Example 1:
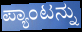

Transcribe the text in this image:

ಪ್ಯಾಂಟನ್ನು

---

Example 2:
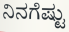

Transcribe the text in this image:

ನಿನಗೆಷ್ಟು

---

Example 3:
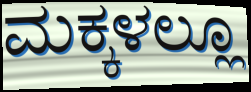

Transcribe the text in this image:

ಮಕ್ಕಳಲ್ಲೂ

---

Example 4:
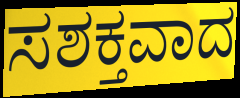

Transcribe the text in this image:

ಸಶಕ್ತವಾದ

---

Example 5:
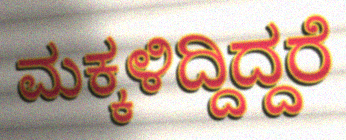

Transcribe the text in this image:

ಮಕ್ಕಳಿದ್ದಿದ್ದರೆ